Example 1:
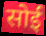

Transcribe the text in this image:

सोई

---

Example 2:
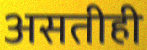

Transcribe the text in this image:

असतीही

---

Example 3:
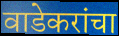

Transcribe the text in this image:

वाडेकरांचा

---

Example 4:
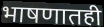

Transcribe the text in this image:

भाषणातही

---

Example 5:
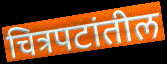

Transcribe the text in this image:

चित्रपटांतील